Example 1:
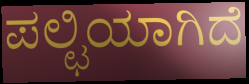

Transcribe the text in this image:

ಪಲ್ಟಿಯಾಗಿದೆ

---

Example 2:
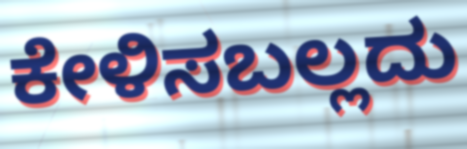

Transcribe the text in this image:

ಕೇಳಿಸಬಲ್ಲದು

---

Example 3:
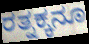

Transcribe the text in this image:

ರತ್ನಕ್ಕನೂ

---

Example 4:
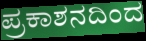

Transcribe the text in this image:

ಪ್ರಕಾಶನದಿಂದ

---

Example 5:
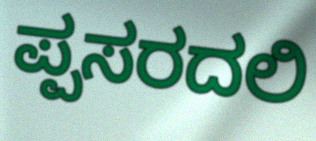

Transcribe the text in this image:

ಪ್ಪಸರದಲಿ